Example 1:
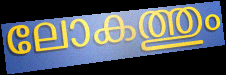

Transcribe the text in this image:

ലോകത്തും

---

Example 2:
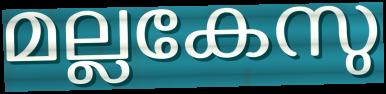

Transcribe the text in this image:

മല്ലകേസു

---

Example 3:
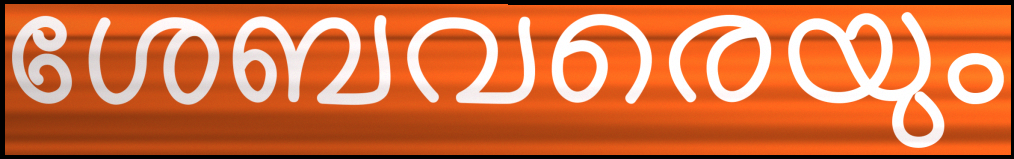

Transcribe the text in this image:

ശേബവരെയും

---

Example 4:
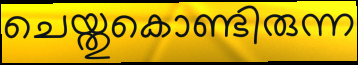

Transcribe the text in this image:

ചെയ്തുകൊണ്ടിരുന്ന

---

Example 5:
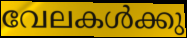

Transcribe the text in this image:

വേലകൾക്കു